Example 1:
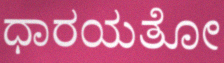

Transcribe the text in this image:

ಧಾರಯತೋ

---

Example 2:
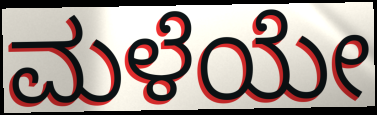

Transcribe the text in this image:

ಮಳೆಯೇ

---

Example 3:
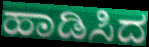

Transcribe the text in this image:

ಹಾಡಿಸಿದ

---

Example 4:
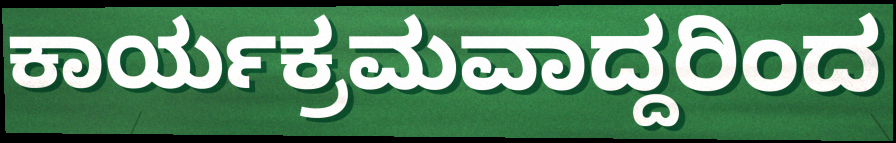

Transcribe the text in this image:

ಕಾರ್ಯಕ್ರಮವಾದ್ದರಿಂದ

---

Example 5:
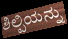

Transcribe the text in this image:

ಶಿಲ್ಪಿಯನ್ನು